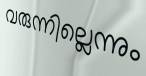
വരുന്നില്ലെന്നും